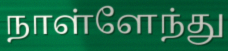
நாள்ளேந்து